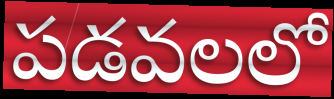
పడవలలో